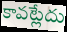
కావట్లేదు